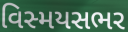
વિસ્મયસભર